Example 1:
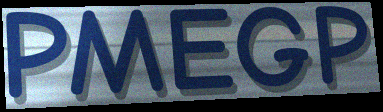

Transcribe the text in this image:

PMEGP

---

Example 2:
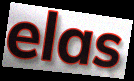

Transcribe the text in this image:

elas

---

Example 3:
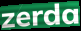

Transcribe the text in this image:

zerda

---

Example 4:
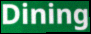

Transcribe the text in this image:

Dining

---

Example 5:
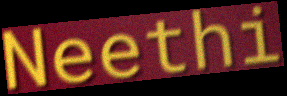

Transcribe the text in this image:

Neethi